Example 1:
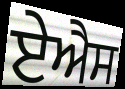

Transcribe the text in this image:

ਏਐਸ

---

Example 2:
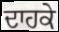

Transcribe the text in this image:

ਦਾਹਕੇ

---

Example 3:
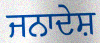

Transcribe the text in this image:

ਜਨਾਦੇਸ਼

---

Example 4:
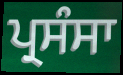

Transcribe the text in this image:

ਪ੍ਰਸੰਸਾ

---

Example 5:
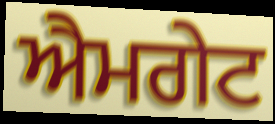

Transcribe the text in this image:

ਐਮਗੇਟ